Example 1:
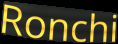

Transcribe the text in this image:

Ronchi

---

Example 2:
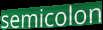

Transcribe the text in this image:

semicolon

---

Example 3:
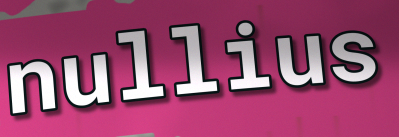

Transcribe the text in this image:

nullius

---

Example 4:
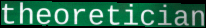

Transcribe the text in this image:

theoretician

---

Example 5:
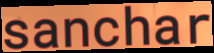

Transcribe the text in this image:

sanchar